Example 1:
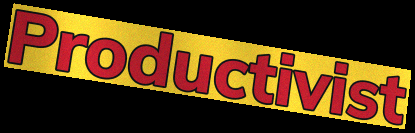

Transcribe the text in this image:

Productivist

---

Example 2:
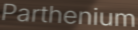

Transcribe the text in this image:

Parthenium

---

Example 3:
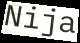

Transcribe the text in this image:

Nija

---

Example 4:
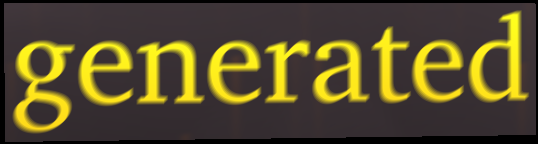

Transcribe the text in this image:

generated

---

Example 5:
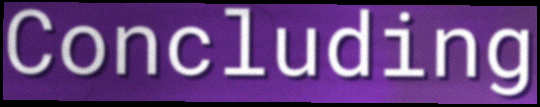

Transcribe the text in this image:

Concluding